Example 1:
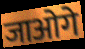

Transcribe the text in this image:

जाओगे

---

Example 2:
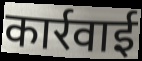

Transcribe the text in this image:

कार्रवाई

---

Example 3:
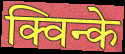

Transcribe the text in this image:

क्विन्के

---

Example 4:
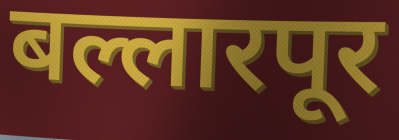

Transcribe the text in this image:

बल्लारपूर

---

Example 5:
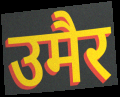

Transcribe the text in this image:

उमैर